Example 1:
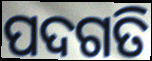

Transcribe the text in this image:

ପଦଗତି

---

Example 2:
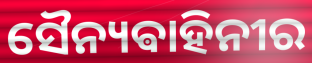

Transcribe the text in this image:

ସୈନ୍ୟଵାହିନୀର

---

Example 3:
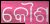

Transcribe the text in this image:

କୌଶ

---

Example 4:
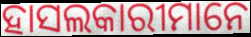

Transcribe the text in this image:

ହାସଲକାରୀମାନେ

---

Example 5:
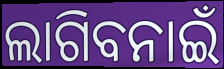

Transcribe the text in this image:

ଲାଗିବନାଇଁ